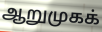
ஆறுமுகக்